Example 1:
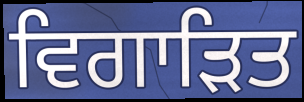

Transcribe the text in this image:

ਵਿਗਾੜਿਤ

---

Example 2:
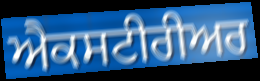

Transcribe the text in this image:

ਐਕਸਟੀਰੀਅਰ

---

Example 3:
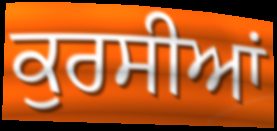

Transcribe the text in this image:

ਕੁਰਸੀਆਂ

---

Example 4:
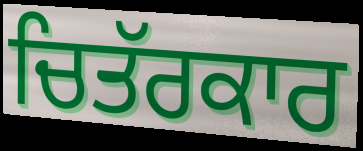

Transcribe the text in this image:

ਚਿਤੱਰਕਾਰ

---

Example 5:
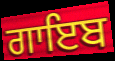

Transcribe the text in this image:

ਗਾਇਬ